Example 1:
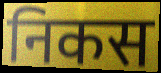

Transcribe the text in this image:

निकस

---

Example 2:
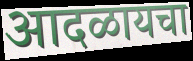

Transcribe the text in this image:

आदळायचा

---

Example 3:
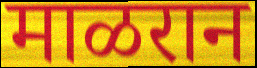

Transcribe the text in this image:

माळरान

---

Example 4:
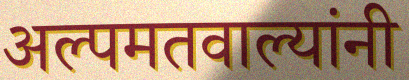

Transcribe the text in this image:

अल्पमतवाल्यांनी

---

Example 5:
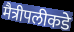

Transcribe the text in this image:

मैत्रीपलीकडे